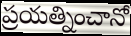
ప్రయత్నించానో